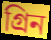
গ্রিন